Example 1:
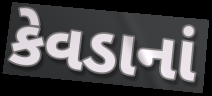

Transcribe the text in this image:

કેવડાનાં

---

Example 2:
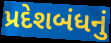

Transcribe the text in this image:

પ્રદેશબંધનું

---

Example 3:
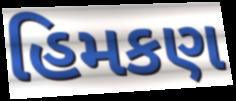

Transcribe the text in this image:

હિમકણ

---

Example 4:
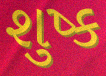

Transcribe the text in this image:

શુષ્ક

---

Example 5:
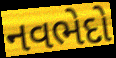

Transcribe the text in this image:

નવભેદો